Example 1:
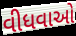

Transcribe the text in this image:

વીધવાઓ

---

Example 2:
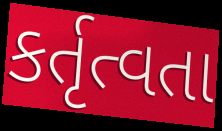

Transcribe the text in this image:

કર્તૃત્વતા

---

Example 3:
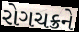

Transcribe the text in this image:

રોગચક્રને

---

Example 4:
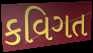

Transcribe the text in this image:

કવિગત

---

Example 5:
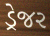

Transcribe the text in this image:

ડ્રેજર